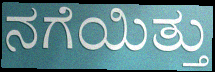
ನಗೆಯಿತ್ತು